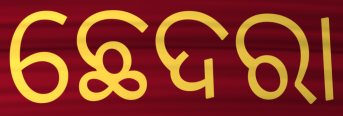
ଛେଦରା